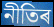
নীতিৰ